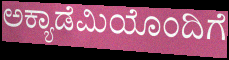
ಅಕ್ಯಾಡೆಮಿಯೊಂದಿಗೆ